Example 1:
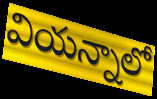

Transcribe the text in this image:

వియన్నాలో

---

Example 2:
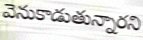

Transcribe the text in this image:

వెనుకాడుతున్నారని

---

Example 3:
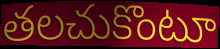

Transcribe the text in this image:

తలచుకొంటూ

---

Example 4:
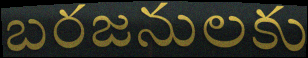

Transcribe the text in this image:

బరజనులకు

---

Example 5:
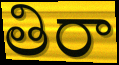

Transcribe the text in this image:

తిరా